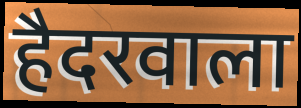
हैदरवाला